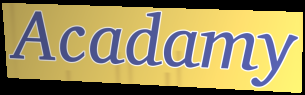
Acadamy